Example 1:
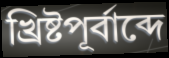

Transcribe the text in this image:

খ্রিষ্টপূর্বাব্দে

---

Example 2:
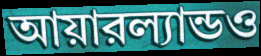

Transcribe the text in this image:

আয়ারল্যান্ডও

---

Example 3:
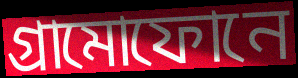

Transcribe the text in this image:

গ্রামোফোনে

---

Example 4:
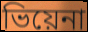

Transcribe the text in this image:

ভিয়েনা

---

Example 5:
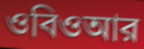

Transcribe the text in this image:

ওবিওআর